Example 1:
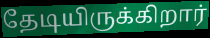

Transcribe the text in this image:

தேடியிருக்கிறார்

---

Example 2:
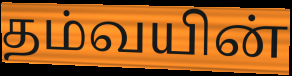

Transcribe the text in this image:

தம்வயின்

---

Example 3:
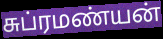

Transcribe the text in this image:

சுப்ரமண்யன்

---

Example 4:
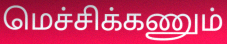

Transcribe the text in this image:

மெச்சிக்கணும்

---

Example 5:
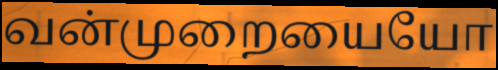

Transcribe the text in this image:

வன்முறையையோ